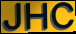
JHC